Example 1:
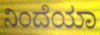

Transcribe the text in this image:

ನಿಂದೆಯಾ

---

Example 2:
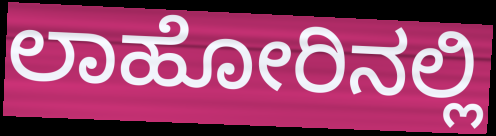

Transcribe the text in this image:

ಲಾಹೋರಿನಲ್ಲಿ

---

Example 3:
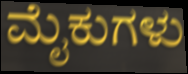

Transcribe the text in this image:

ಮೈಕುಗಳು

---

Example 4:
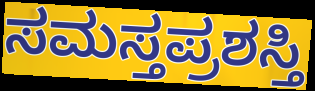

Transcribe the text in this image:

ಸಮಸ್ತಪ್ರಶಸ್ತಿ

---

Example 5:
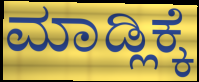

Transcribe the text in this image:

ಮಾಡ್ಲಿಕ್ಕೆ